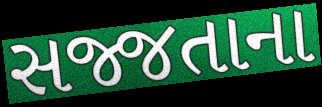
સજ્જતાના